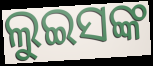
ଲୁଇସଙ୍କ